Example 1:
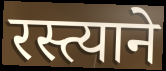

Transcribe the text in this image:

रस्त्याने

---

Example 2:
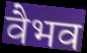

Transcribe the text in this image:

वैभव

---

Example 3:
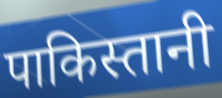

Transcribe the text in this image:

पाकिस्तानी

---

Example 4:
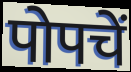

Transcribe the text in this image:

पोपचें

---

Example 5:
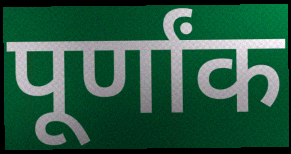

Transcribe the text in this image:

पूर्णांक